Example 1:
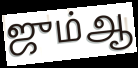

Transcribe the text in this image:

ஜும்ஆ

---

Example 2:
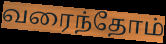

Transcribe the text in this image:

வரைந்தோம்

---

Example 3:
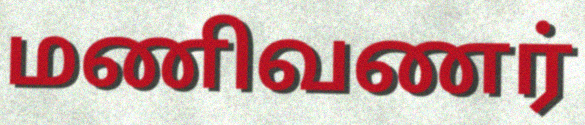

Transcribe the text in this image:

மணிவணர்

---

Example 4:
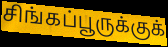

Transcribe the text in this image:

சிங்கப்பூருக்குக்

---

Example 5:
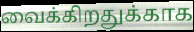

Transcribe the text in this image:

வைக்கிறதுக்காக